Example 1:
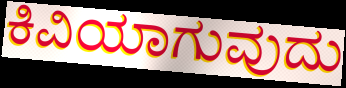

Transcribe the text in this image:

ಕಿವಿಯಾಗುವುದು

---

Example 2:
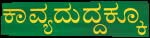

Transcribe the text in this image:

ಕಾವ್ಯದುದ್ದಕ್ಕೂ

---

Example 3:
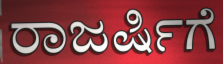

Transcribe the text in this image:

ರಾಜರ್ಷಿಗೆ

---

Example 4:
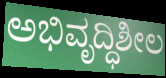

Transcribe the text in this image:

ಅಭಿವೃದ್ಧಿಶೀಲ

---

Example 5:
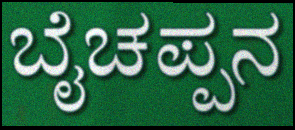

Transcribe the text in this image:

ಬೈಚಪ್ಪನ